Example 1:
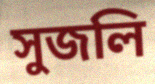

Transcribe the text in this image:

সুজলি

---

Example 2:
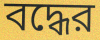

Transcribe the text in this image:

বদ্ধের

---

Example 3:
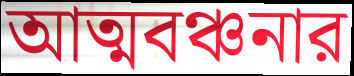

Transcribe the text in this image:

আত্মবঞ্চনার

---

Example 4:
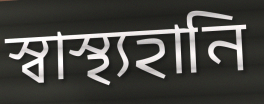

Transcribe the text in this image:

স্বাস্থ্যহানি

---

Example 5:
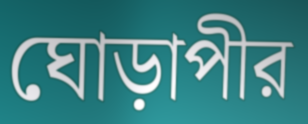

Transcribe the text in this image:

ঘোড়াপীর